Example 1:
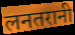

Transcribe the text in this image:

लनतरानी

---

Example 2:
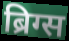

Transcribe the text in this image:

ब्रिग्स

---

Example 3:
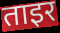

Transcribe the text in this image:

ताइर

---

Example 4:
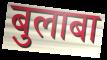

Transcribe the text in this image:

बुलाबा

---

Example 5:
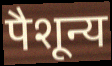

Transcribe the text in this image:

पैशून्य